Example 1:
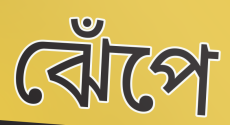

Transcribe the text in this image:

ঝেঁপে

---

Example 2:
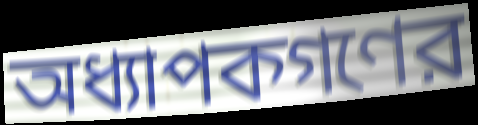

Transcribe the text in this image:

অধ্যাপকগণের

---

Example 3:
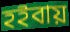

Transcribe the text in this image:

হইবায়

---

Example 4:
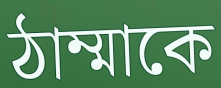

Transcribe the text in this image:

ঠাম্মাকে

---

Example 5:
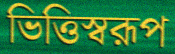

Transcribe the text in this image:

ভিত্তিস্বরূপ